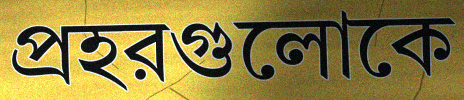
প্রহরগুলোকে